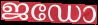
ജഡോ